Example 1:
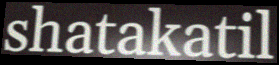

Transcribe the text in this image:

shatakatil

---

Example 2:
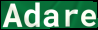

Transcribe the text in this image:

Adare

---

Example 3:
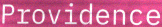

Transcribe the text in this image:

Providence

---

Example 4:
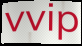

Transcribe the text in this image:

vvip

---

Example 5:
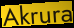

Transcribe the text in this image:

Akrura